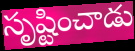
సృష్టించాడు